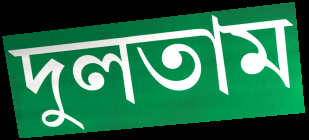
দুলতাম